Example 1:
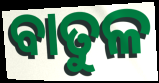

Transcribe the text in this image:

ବାତୁଳ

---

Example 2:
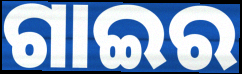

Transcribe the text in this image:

ଗାଇର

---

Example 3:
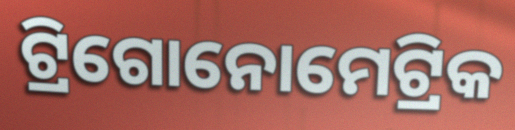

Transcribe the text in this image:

ଟ୍ରିଗୋନୋମେଟ୍ରିକ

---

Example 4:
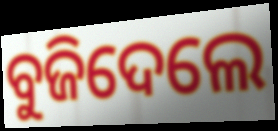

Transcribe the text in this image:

ବୁଜିଦେଲେ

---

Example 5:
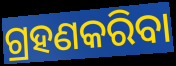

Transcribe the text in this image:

ଗ୍ରହଣକରିବା